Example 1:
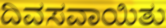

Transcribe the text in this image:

ದಿವಸವಾಯಿತು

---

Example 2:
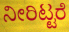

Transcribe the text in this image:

ನೀರಿಟ್ಟರೆ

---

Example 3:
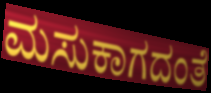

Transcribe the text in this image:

ಮಸುಕಾಗದಂತೆ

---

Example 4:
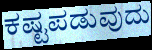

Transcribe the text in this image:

ಕಷ್ಟಪಡುವುದು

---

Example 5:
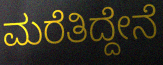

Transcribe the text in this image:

ಮರೆತಿದ್ದೇನೆ